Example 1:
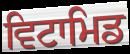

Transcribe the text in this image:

ਵਿਟਾਮਿਡ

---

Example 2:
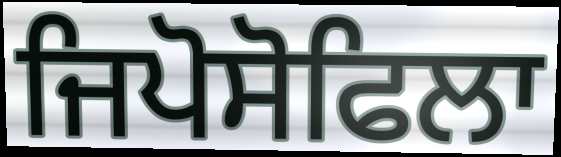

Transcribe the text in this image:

ਜਿਪੋਸੋਫਿਲਾ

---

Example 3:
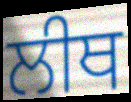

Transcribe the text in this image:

ਲੀਥ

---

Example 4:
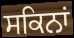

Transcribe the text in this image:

ਸਕਿਨਾਂ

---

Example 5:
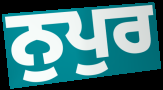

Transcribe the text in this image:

ਨੁਪੁਰ